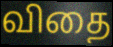
விதை